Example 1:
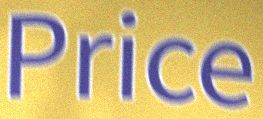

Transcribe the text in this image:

Price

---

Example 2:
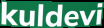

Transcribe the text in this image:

kuldevi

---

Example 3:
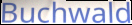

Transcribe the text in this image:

Buchwald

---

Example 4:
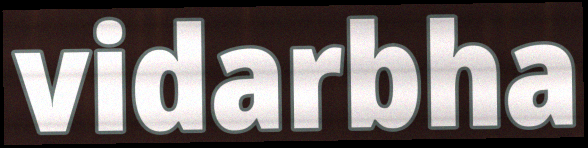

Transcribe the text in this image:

vidarbha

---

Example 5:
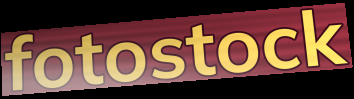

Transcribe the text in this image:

fotostock